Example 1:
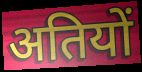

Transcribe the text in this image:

अतियों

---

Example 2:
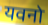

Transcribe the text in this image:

यवनो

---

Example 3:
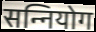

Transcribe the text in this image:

सन्नियोग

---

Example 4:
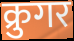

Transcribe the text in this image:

क्रुगर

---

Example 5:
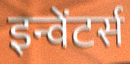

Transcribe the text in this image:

इन्वेंटर्स